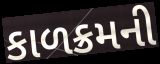
કાળક્રમની